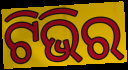
ଟିଭିର